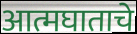
आत्मघाताचे